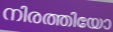
നിരത്തിയോ